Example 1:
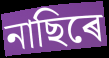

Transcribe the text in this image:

নাছিৰে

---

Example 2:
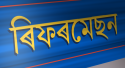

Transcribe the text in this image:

ৰিফৰমেছন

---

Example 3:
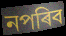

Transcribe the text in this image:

নপৰিব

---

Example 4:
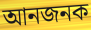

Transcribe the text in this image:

আনজনক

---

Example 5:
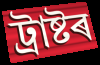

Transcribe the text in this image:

ট্ৰাষ্টৰ